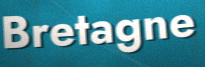
Bretagne